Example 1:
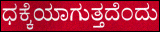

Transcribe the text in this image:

ಧಕ್ಕೆಯಾಗುತ್ತದೆಂದು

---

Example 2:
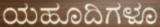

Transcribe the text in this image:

ಯಹೂದಿಗಳೂ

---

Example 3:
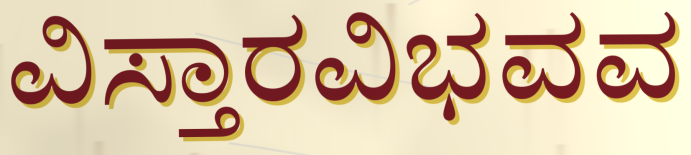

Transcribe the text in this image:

ವಿಸ್ತಾರವಿಭವವ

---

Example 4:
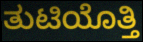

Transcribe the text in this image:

ತುಟಿಯೊತ್ತಿ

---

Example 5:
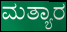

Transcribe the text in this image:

ಮತ್ಯಾರ